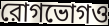
রোগভোগও